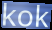
kok